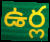
ఉర్ల